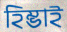
হিম্ভাই